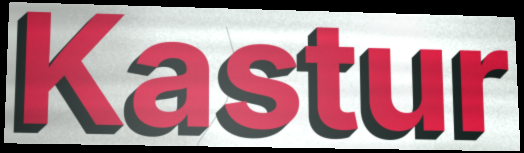
Kastur